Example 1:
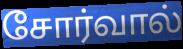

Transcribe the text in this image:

சோர்வால்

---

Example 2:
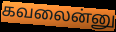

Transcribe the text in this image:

கவலைன்னு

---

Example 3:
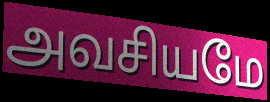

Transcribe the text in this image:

அவசியமே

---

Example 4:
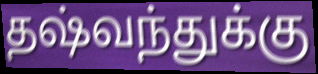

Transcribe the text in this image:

தஷ்வந்துக்கு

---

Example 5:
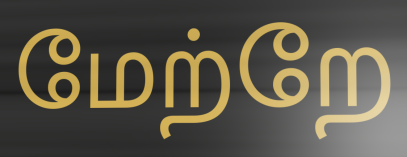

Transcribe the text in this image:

மேற்றே